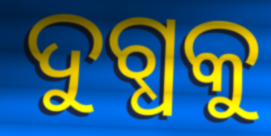
ଦୁଗ୍ଧକୁ